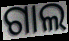
ଗାଲ